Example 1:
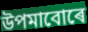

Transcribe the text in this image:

উপমাবোৰে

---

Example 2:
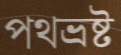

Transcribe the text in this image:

পথভ্ৰষ্ট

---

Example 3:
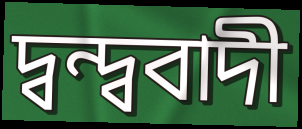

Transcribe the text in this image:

দ্বন্দ্ববাদী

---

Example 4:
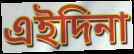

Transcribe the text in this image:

এইদিনা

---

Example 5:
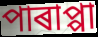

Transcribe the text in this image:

পাৰাপ্পা